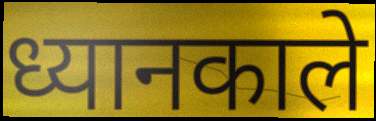
ध्यानकाले